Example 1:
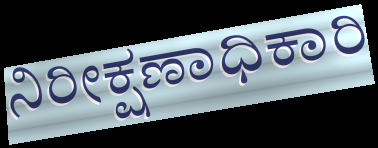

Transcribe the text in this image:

ನಿರೀಕ್ಷಣಾಧಿಕಾರಿ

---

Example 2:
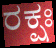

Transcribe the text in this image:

ರಕ್ಷಃ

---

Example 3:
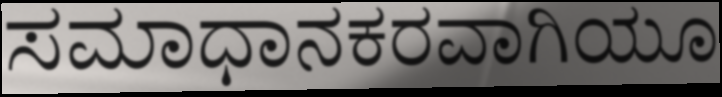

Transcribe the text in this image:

ಸಮಾಧಾನಕರವಾಗಿಯೂ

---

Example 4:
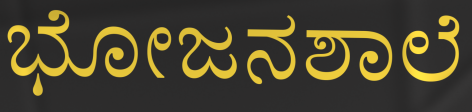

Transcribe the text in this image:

ಭೋಜನಶಾಲೆ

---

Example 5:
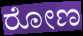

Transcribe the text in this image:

ರೋಣ